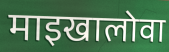
माइखालोवा